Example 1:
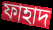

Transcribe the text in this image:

ফাহাদ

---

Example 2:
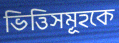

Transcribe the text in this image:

ভিত্তিসমূহকে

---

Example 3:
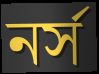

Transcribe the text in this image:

নর্স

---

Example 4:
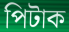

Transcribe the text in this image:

পিটাক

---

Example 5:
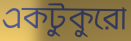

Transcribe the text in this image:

একটুকুরো